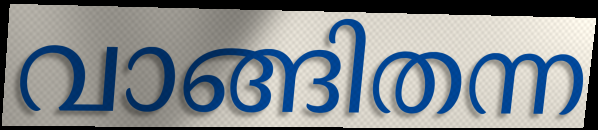
വാങ്ങിതന്ന